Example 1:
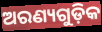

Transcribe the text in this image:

ଅରଣ୍ୟଗୁଡ଼ିକ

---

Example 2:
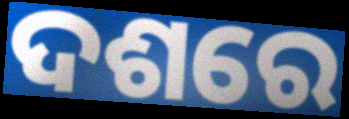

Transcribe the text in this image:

ଦଶରେ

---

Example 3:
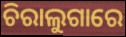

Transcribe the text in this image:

ଚିରାଲୁଗାରେ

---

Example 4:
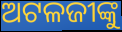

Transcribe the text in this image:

ଅଟଳଜୀଙ୍କୁ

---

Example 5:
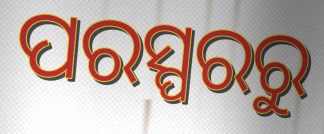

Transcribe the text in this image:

ପରସ୍ପରରୁ